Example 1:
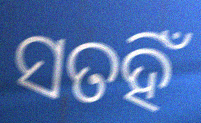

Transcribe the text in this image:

ସତହିଁ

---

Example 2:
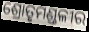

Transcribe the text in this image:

ଶ୍ରୋତୃମଣ୍ଡଳୀର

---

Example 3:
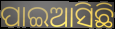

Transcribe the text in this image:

ପାଇଆସିଛି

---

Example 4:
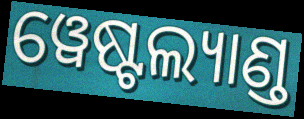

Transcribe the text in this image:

ୱେଷ୍ଟଲ୍ୟାଣ୍ଡ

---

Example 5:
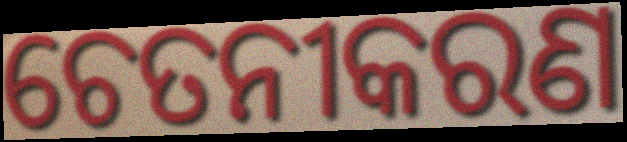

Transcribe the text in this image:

ଚେତନୀକରଣ